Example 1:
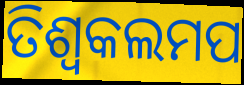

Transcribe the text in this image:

ତିଶ୍ୱକଲମପ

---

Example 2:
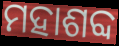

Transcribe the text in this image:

ମହାଶବ୍ଦ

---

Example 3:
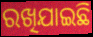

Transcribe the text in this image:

ରଖିଯାଇଛି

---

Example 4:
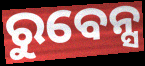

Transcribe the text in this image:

ରୁବେନ୍ସ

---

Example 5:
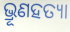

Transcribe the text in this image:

ଭ୍ରୂଣହତ୍ୟା